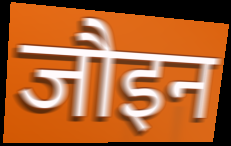
जौइन